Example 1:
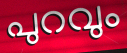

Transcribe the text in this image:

പുറവും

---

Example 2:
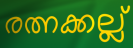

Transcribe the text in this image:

രത്നക്കല്ല്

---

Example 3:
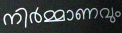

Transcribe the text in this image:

നിർമ്മാണവും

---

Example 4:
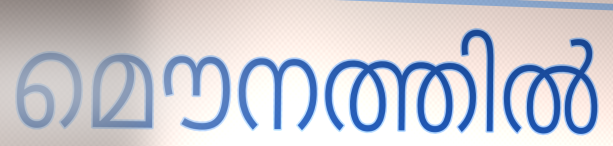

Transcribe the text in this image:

മൌനത്തിൽ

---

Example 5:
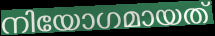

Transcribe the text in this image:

നിയോഗമായത്